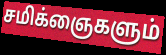
சமிக்ஞைகளும்